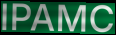
IPAMC